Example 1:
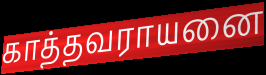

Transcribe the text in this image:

காத்தவராயனை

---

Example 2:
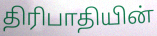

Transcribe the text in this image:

திரிபாதியின்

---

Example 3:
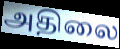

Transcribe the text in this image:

அதிலை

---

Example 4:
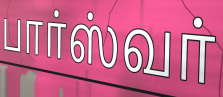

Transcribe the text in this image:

பார்ஸ்வர்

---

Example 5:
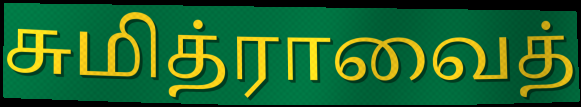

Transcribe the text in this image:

சுமித்ராவைத்